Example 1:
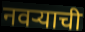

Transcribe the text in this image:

नवर्‍याची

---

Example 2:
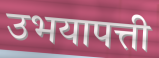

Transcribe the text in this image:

उभयापत्ती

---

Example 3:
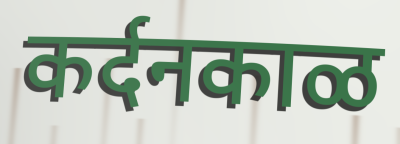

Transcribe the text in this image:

कर्दनकाळ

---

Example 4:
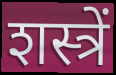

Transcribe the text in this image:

शस्त्रें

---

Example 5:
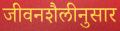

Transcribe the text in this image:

जीवनशैलीनुसार